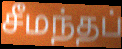
சீமந்தப்